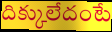
దిక్కులేదంటే